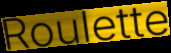
Roulette